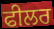
ਫੀਲਰ